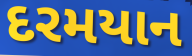
દરમયાન